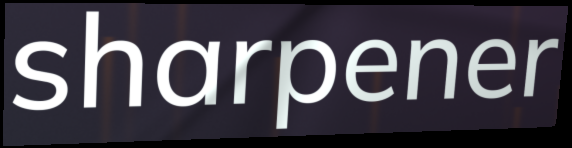
sharpener